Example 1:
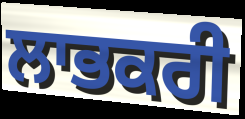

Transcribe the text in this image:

ਲਾਭਕਰੀ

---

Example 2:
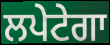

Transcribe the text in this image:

ਲਪੇਟੇਗਾ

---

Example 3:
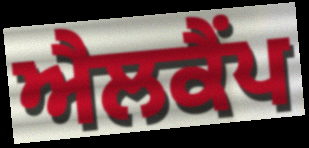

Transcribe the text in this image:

ਐਲਕੈਂਪ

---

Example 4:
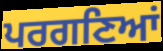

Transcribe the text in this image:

ਪਰਗਣਿਆਂ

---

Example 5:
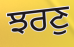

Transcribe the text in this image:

ਝਰਣੁ